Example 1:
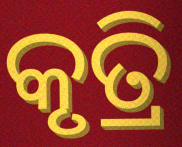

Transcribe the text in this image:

କୃତ୍ରି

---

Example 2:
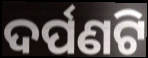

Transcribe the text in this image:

ଦର୍ପଣଟି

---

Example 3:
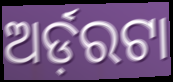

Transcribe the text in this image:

ଅର୍ଡ଼ରଟା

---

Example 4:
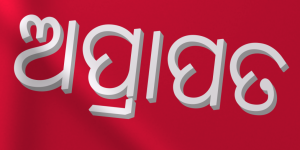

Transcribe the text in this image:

ଅପ୍ରାପତ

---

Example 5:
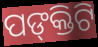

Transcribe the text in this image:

ପଙ୍‌କ୍ତିଟି